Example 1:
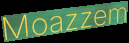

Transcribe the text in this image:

Moazzem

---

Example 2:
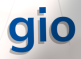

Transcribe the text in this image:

gio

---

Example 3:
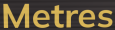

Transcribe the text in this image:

Metres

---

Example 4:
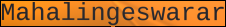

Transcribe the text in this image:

Mahalingeswarar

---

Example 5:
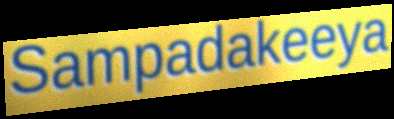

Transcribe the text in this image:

Sampadakeeya